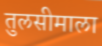
तुलसीमाला